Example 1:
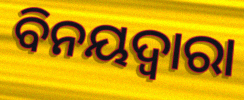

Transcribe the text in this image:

ବିନୟଦ୍ବାରା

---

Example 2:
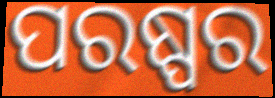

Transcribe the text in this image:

ପରଷ୍ପର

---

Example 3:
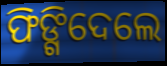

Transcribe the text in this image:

ଫିଙ୍ଗିଦେଲେ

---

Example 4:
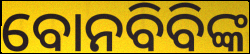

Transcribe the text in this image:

ବୋନବିବିଙ୍କ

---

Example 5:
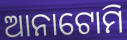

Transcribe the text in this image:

ଆନାଟୋମି